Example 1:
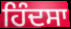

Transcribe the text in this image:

ਹਿੰਦਸਾ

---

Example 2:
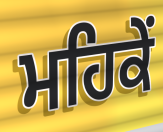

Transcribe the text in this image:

ਮਹਿਕੇਂ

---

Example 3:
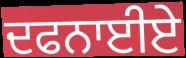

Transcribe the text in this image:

ਦਫਨਾਈਏ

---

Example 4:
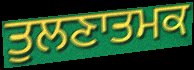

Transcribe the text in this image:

ਤੁਲਣਾਤਮਕ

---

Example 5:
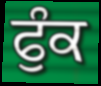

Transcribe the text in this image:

ਫੁੰਕ